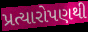
પ્રત્યારોપણથી